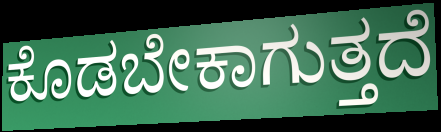
ಕೊಡಬೇಕಾಗುತ್ತದೆ